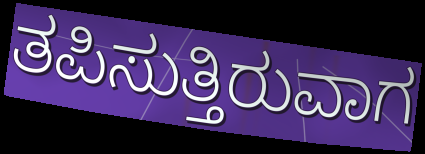
ತಪಿಸುತ್ತಿರುವಾಗ